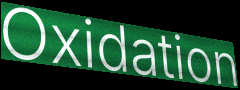
Oxidation